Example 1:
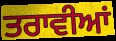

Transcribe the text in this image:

ਤਰਾਵੀਆਂ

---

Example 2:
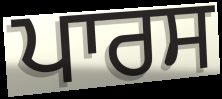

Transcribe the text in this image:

ਪਾਰਸ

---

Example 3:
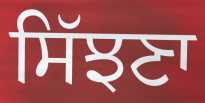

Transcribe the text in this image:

ਸਿੱਝਣਾ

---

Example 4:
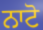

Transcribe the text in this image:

ਨਾਟੋ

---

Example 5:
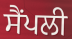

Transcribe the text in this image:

ਸੈਂਪਲੀ